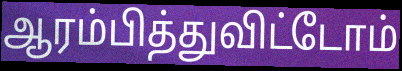
ஆரம்பித்துவிட்டோம்